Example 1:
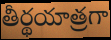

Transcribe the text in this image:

తీర్థయాత్రగా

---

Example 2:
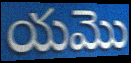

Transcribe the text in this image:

యమొ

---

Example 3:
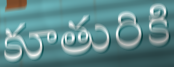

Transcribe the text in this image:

కూతురికి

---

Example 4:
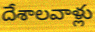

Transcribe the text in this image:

దేశాలవాళ్లు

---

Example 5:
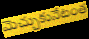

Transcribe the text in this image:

మెచ్చుకునేటంత